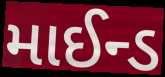
માઈન્ડ